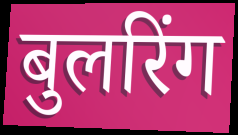
बुलरिंग